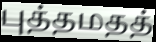
புத்தமதத்